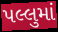
પલ્લુમાં